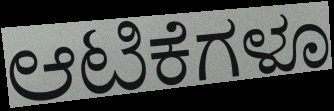
ಆಟಿಕೆಗಳೂ